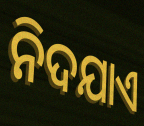
ନିଦଯାଏ